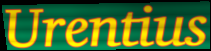
Urentius